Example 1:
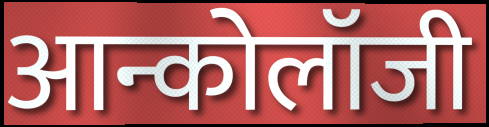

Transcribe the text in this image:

आन्कोलॉजी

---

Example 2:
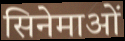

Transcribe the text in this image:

सिनेमाओं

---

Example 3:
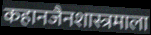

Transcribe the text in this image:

कहानजैनशास्त्रमाला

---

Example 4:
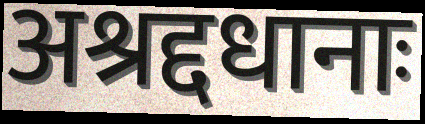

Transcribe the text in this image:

अश्रद्दधानाः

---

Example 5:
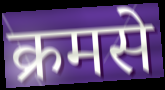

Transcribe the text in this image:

क्रमसे